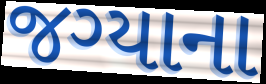
જગ્યાના